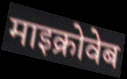
माइक्रोवेब